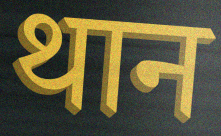
थान